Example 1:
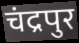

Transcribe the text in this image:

चंद्रपुर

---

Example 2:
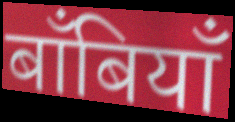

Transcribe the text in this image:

बाँबियाँ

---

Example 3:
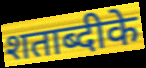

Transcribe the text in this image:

शताब्दीके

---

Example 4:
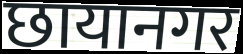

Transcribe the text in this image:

छायानगर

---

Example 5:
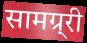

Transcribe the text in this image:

सामग्र्री